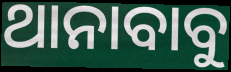
ଥାନାବାବୁ